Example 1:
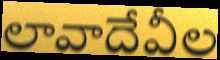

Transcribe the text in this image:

లావాదేవీల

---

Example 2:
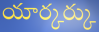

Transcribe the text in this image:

యార్కర్కు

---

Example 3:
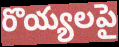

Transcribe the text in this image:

రొయ్యలపై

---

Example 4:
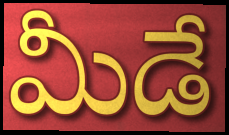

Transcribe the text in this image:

మీడే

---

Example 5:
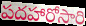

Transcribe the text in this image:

పదహారోసారి